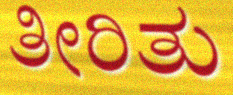
ತೀರಿತು